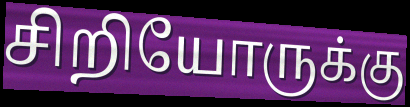
சிறியோருக்கு